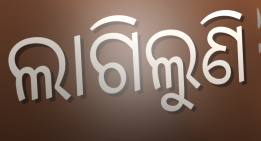
ଲାଗିଲୁଣି